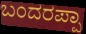
ಬಂದರಪ್ಪಾ